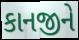
કાનજીને